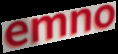
emno